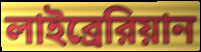
লাইব্রেরিয়ান